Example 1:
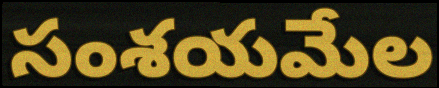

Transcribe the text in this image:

సంశయమేల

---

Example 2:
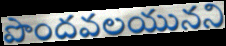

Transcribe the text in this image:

పొందవలయునని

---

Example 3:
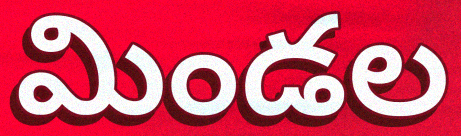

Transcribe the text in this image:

మిండల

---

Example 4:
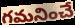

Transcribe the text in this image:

గమనించే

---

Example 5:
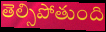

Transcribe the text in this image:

తెల్సిపోతుంది